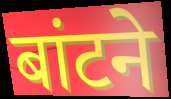
बांटने